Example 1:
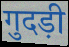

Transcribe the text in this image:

गुदड़ी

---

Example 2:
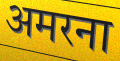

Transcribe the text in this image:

अमरना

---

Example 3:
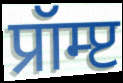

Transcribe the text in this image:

प्रॉम्प्ट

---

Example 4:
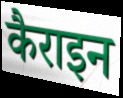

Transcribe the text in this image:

कैराइन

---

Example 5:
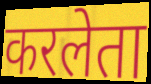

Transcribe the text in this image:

करलेता